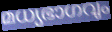
മധ്യഭാഗവും